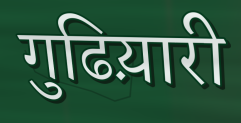
गुढिय़ारी